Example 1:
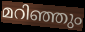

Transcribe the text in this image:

മറിഞ്ഞും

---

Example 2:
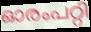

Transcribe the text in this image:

ഓരംപറ്റി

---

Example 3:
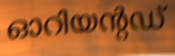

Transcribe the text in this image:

ഓറിയന്റഡ്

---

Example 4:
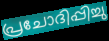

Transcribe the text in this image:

പ്രചോദിപ്പിച്ചു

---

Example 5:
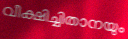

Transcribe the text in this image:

വീക്ഷിച്ചിതാനയും